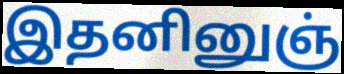
இதனினுஞ்